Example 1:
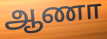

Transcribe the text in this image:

ஆணா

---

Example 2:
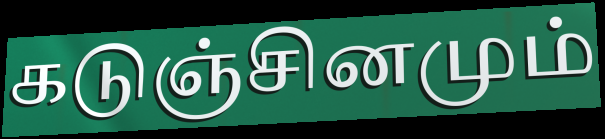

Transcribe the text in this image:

கடுஞ்சினமும்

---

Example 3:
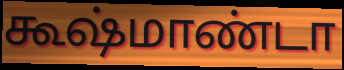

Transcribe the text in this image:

கூஷ்மாண்டா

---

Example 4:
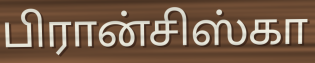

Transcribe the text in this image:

பிரான்சிஸ்கா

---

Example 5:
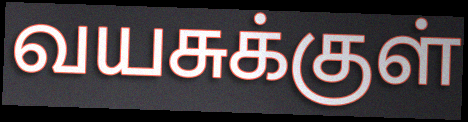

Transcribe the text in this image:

வயசுக்குள்